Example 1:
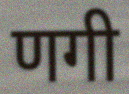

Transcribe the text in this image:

णगी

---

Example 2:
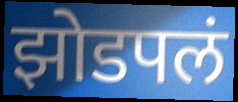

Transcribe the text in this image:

झोडपलं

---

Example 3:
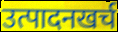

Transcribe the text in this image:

उत्पादनखर्च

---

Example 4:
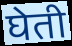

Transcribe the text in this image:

घेती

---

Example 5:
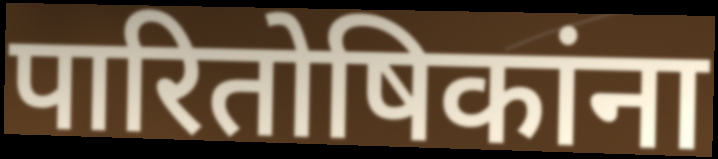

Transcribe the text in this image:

पारितोषिकांना